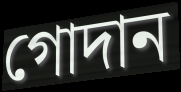
গোদান